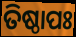
ତିଷ୍ଠାପଃ